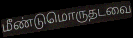
மீண்டுமொருதடவை